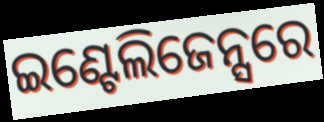
ଇଣ୍ଟେଲିଜେନ୍ସରେ